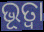
ଭୂତ୍ଵା